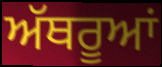
ਅੱਥਰੂਆਂ